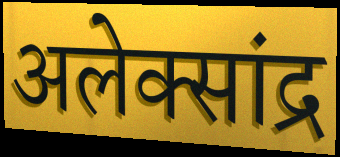
अलेक्सांद्र